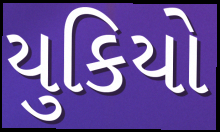
યુકિયો